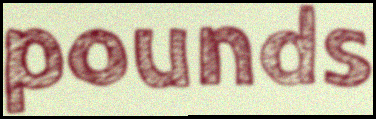
pounds